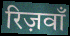
रिज़वाँ